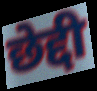
छेद्दी